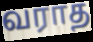
வராத